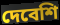
দেবেশি